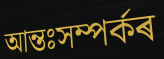
আন্তঃসম্পৰ্কৰ